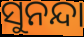
ସୁନନ୍ଦା